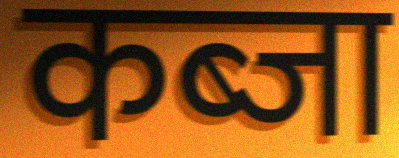
कब्‍जा